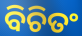
ବିଚିତଂ